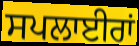
ਸਪਲਾਈਰਾਂ